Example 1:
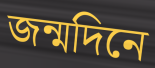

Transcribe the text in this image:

জন্মদিনে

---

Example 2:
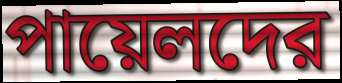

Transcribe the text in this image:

পায়েলদের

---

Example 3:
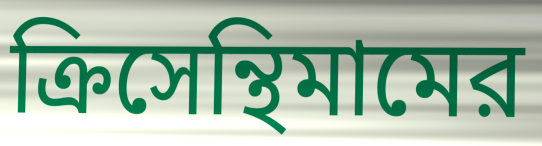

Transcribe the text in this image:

ক্রিসেন্থিমামের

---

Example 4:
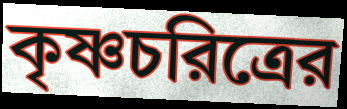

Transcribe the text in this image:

কৃষ্ণচরিত্রের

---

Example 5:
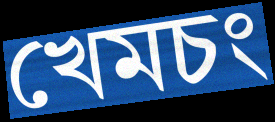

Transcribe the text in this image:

খেমচং